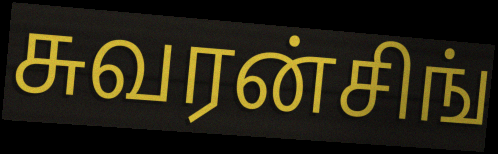
சுவரன்சிங்